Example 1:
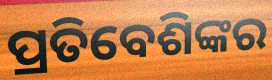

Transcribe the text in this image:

ପ୍ରତିବେଶିଙ୍କର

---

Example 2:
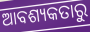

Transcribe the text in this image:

ଆବଶ୍ୟକତାରୁ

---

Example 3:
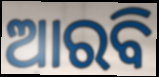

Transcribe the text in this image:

ଆରବି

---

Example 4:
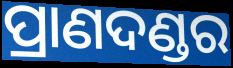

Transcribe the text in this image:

ପ୍ରାଣଦଣ୍ଡର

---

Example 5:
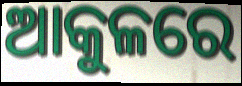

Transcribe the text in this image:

ଆକୁଳରେ